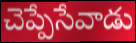
చెప్పేసేవాడు